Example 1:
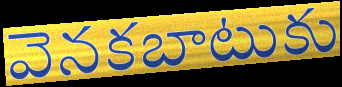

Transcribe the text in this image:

వెనకబాటుకు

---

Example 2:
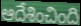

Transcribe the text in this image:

ఆదేశించింది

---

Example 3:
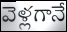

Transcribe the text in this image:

వెళ్లగానే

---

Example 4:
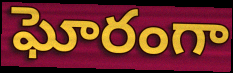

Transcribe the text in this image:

ఘోరంగా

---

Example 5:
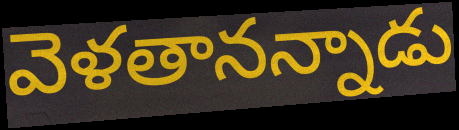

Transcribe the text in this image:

వెళతానన్నాడు